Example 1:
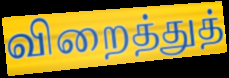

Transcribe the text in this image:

விறைத்துத்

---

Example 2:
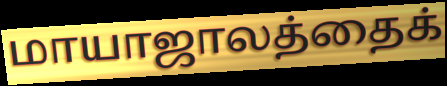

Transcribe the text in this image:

மாயாஜாலத்தைக்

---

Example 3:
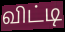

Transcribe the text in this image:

விட்டி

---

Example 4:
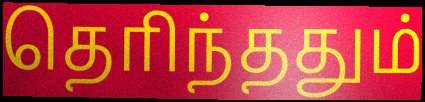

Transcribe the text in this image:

தெரிந்ததும்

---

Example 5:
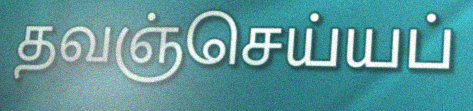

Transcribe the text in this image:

தவஞ்செய்யப்